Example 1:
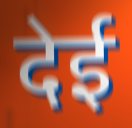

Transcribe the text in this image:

देई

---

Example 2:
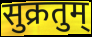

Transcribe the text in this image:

सुक्रतुम्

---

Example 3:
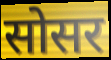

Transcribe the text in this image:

सोसर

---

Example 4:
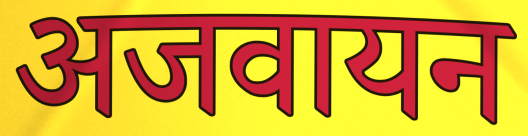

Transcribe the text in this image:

अजवायन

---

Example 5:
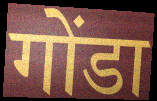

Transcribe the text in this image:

गोंडा